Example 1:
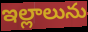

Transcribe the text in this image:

ఇల్లాలును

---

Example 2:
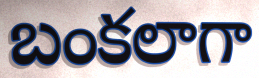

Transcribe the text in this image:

బంకలాగా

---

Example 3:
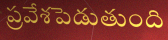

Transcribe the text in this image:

ప్రవేశపెడుతుంది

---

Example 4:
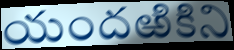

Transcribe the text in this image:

యందఱికిని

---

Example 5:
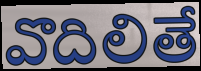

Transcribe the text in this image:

వొదిలితే